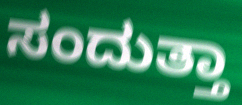
ಸಂದುತ್ತಾ